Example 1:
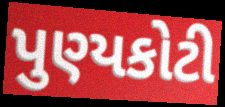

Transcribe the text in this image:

પુણ્યકોટી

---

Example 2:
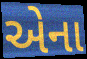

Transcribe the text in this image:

એના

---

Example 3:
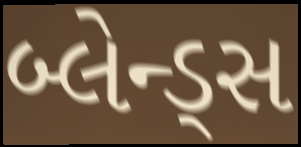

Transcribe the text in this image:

બ્લેન્ડ્સ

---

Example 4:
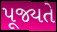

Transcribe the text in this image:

પૂજ્યતે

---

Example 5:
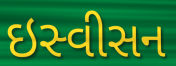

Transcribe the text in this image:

ઇસ્વીસન